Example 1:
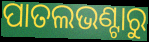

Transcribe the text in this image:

ପାତଲଭଣ୍ଟାରୁ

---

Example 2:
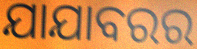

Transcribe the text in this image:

ଯାଯାବରର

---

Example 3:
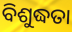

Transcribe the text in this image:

ବିଶୁଦ୍ଧତା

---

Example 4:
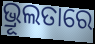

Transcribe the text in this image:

ଭ୍ରୂଲତାରେ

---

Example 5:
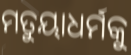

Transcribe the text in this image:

ମତୁୟାଧର୍ମକୁ